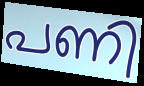
പണി